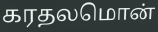
கரதலமொன்